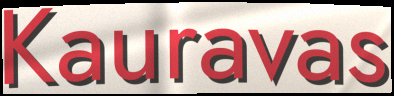
Kauravas